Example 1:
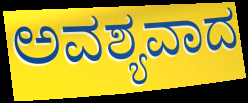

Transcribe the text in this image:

ಅವಶ್ಯವಾದ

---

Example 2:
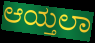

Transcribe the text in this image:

ಆಯ್ತಲಾ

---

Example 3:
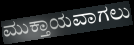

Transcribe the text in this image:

ಮುಕ್ತಾಯವಾಗಲು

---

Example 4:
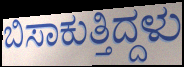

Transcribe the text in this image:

ಬಿಸಾಕುತ್ತಿದ್ದಳು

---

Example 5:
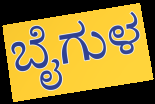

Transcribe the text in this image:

ಬೈಗುಳ